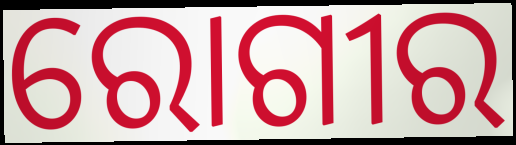
ରୋଗୀର